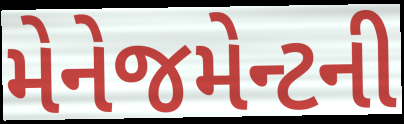
મેનેજમેન્ટની